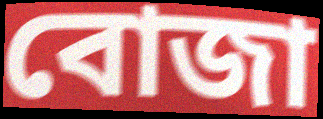
বোজা